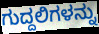
ಗುದ್ದಲಿಗಳನ್ನು